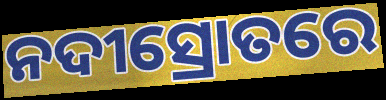
ନଦୀସ୍ରୋତରେ